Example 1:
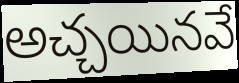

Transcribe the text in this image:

అచ్చయినవే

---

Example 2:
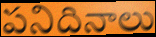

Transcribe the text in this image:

పనిదినాలు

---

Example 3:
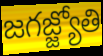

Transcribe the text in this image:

జగజ్జ్యోతి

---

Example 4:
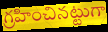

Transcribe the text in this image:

గ్రహించినట్టుగా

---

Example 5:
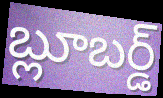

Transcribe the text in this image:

బ్లూబర్డ్